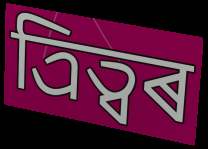
ত্ৰিত্বৰ